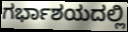
ಗರ್ಭಾಶಯದಲ್ಲಿ